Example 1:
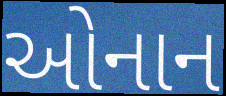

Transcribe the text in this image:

ઓનાન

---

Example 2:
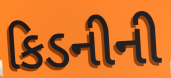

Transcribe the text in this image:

કિડનીની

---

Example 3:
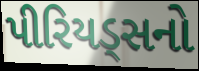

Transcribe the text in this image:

પીરિયડ્સનો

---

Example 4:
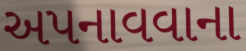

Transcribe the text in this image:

અપનાવવાના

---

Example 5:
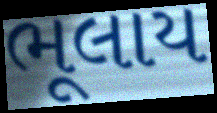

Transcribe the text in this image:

ભૂલાય